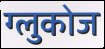
ग्लुकोज